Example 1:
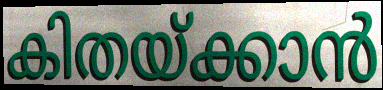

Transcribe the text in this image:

കിതയ്ക്കാൻ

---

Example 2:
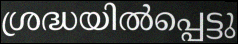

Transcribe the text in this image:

ശ്രദ്ധയിൽപ്പെട്ടു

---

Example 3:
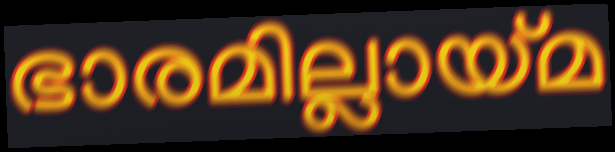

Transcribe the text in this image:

ഭാരമില്ലായ്മ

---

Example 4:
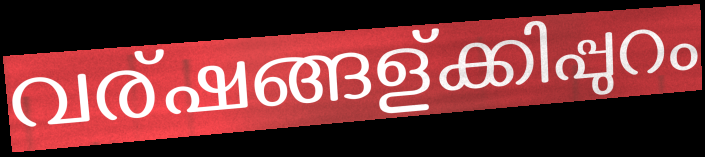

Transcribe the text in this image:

വര്ഷങ്ങള്ക്കിപ്പുറം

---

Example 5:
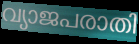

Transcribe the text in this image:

വ്യാജപരാതി